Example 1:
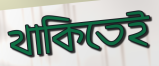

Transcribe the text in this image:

থাকিতেই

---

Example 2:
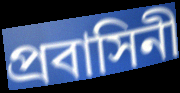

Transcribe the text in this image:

প্রবাসিনী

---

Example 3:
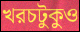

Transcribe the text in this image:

খরচটুকুও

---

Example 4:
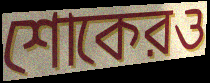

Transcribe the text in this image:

শোকেরও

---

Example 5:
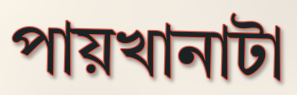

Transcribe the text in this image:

পায়খানাটা